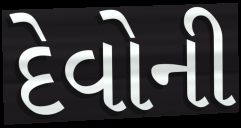
દેવોની